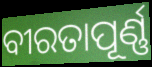
ବୀରତାପୂର୍ଣ୍ଣ